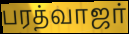
பரத்வாஜர்